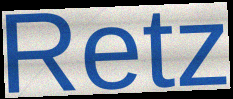
Retz